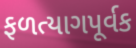
ફળત્યાગપૂર્વક